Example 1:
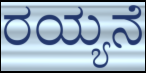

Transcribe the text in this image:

ರಯ್ಯನೆ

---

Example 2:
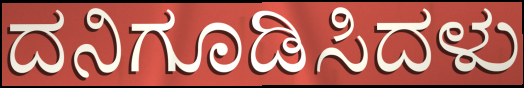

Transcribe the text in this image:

ದನಿಗೂಡಿಸಿದಳು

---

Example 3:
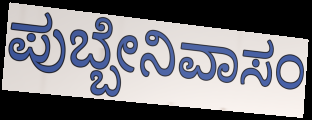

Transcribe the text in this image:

ಪುಬ್ಬೇನಿವಾಸಂ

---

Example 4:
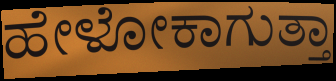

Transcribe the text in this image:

ಹೇಳೋಕಾಗುತ್ತಾ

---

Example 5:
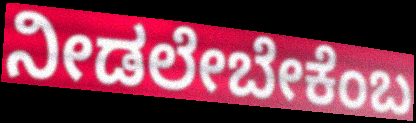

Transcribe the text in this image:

ನೀಡಲೇಬೇಕೆಂಬ